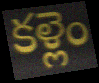
కళ్లెం